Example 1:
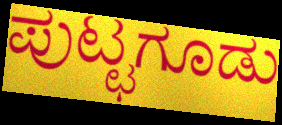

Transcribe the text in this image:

ಪುಟ್ಟಗೂಡು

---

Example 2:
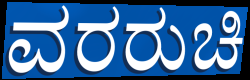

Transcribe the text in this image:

ವರರುಚಿ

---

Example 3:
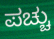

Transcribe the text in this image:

ಪಚ್ಚು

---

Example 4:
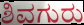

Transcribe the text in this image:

ಶಿವಗುರು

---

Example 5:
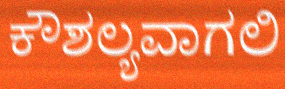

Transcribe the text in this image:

ಕೌಶಲ್ಯವಾಗಲಿ